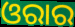
ଓରାର